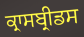
ਕ੍ਰਾਸਬ੍ਰੀਡਸ